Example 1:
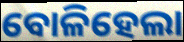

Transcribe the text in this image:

ବୋଳିହେଲା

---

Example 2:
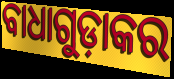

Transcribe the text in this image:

ବାଧାଗୁଡ଼ାକର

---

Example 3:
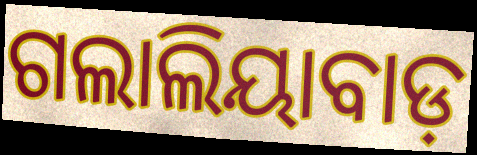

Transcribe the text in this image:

ଗଲାଲିୟାବାଡ଼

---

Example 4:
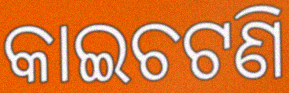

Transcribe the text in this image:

କାଇଚଟଣି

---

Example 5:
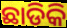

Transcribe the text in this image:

ଛାଡିକି